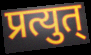
प्रत्युत्